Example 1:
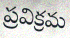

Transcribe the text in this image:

ప్రవిక్రమ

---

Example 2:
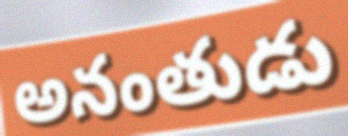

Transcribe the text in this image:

అనంతుడు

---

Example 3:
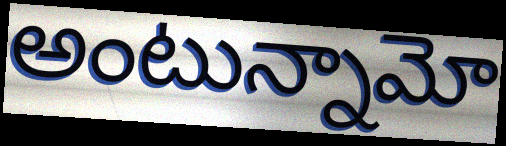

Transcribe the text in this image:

అంటున్నామో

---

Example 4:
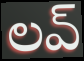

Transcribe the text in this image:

లవ్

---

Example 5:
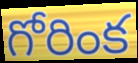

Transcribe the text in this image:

గోరింక